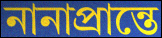
নানাপ্রান্তে